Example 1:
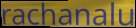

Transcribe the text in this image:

rachanalu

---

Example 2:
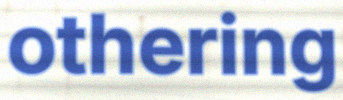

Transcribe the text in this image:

othering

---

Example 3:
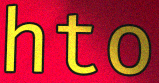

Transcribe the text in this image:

hto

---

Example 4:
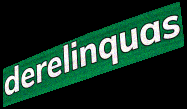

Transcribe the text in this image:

derelinquas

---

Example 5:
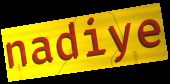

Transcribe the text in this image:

nadiye